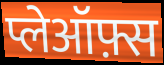
प्लेऑफ़्स